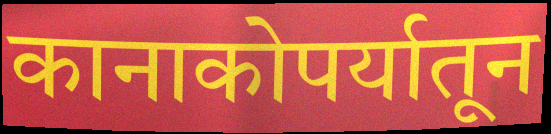
कानाकोपर्यातून